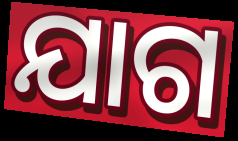
ଯାଗ